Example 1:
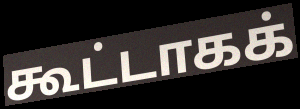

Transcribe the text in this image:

கூட்டாகக்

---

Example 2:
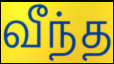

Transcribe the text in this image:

வீந்த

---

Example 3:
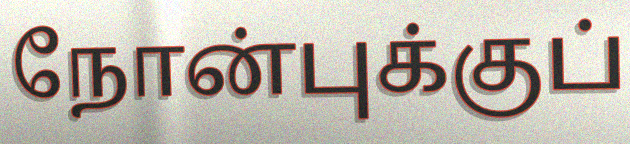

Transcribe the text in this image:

நோன்புக்குப்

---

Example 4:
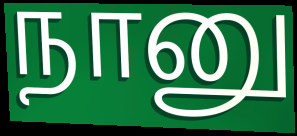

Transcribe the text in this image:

நானு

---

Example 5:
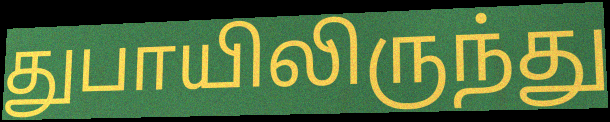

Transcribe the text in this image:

துபாயிலிருந்து